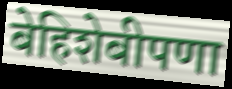
बेहिशेबीपणा